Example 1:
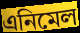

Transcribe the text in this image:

এনিমেল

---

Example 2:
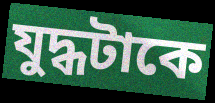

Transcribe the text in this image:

যুদ্ধটাকে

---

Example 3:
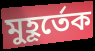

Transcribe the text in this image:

মুহূর্তেক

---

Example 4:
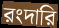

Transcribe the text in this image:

রংদারি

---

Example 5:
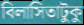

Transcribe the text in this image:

বিলাসিতাটুকু